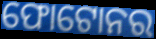
ଫୋଟୋନର